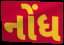
નોંધ